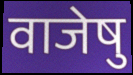
वाजेषु